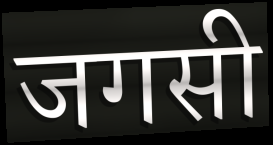
जगसी